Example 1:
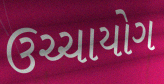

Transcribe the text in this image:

ઉચ્ચાયોગ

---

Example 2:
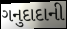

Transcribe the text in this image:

ગનુદાદાની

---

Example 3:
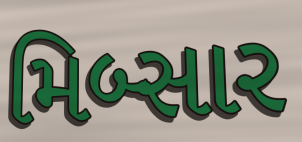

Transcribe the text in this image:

મિબ્સાર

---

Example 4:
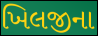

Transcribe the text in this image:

ખિલજીના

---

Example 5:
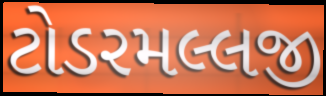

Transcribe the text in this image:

ટોડરમલ્લજી